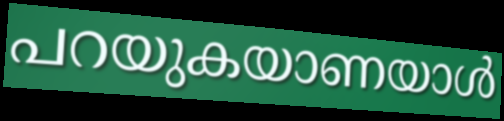
പറയുകയാണയാൾ